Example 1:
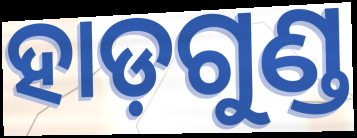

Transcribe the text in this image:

ହାଡ଼ଗୁଣ୍ଡ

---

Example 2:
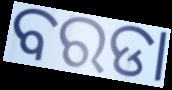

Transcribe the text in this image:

ବରଡା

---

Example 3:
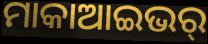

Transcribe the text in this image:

ମାକାଆଇଭର୍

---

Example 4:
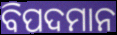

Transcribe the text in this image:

ବିପଦମାନ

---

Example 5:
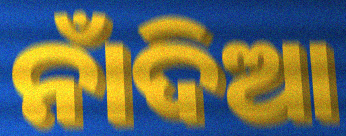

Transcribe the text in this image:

ନାଁଦିଆ